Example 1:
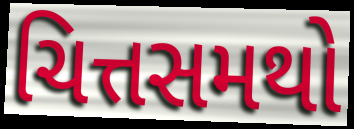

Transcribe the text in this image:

ચિત્તસમથો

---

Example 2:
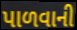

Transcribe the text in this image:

પાળવાની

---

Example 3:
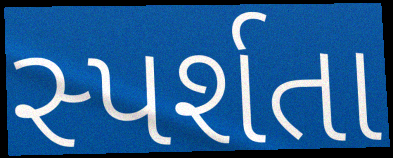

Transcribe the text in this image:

સ્પર્શતા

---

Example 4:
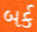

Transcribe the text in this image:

બર્ક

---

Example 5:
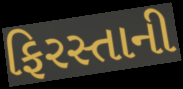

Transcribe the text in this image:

ફિરસ્તાની